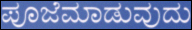
ಪೂಜೆಮಾಡುವುದು